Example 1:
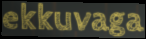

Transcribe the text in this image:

ekkuvaga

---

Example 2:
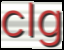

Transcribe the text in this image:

clg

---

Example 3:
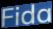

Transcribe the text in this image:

Fida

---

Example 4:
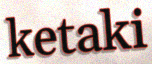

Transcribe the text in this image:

ketaki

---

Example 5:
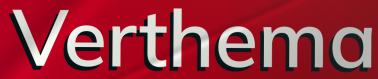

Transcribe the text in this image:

Verthema